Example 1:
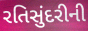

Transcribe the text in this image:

રતિસુંદરીની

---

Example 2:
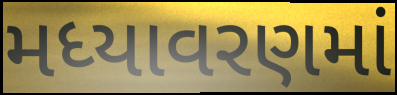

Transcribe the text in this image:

મધ્યાવરણમાં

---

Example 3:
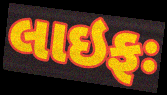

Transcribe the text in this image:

લાઇફઃ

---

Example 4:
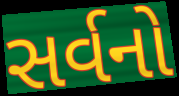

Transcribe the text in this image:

સર્વનો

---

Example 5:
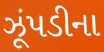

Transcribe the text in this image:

ઝૂંપડીના